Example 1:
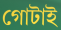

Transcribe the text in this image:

গোটাই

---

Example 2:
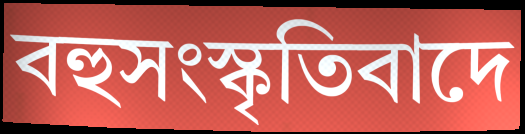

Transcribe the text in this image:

বহুসংস্কৃতিবাদে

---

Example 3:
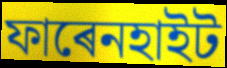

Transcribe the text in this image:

ফাৰেনহাইট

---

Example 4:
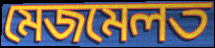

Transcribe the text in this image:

মেজমেলত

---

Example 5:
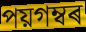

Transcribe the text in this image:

পয়গম্বৰ